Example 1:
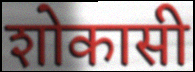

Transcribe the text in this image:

शोकासी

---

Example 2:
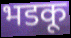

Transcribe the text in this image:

भडकू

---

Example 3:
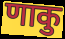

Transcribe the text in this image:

णाकु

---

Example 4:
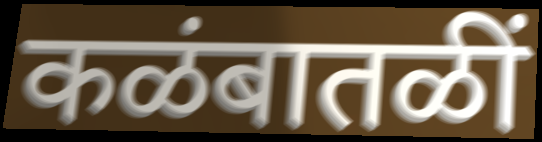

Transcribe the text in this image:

कळंबातळीं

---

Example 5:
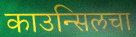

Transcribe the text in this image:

काउन्सिलचा